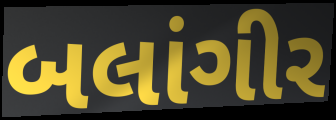
બલાંગીર